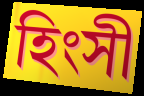
হিংসী